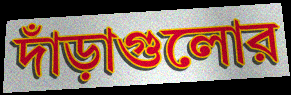
দাঁড়াগুলোর